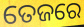
ତେଜରେ